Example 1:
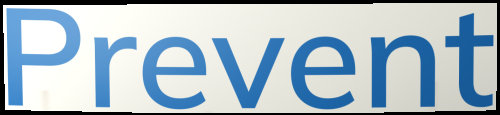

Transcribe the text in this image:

Prevent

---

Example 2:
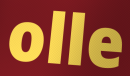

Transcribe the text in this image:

olle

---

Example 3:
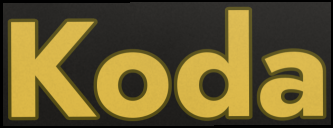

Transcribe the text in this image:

Koda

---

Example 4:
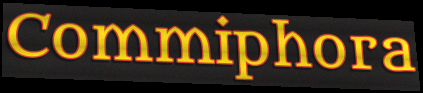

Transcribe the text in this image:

Commiphora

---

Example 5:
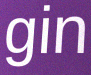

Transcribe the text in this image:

gin